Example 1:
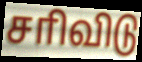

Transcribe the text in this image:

சரிவிடு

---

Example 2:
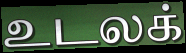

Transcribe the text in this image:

உடலக்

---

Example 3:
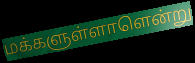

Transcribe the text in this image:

மக்களுள்ளாளென்று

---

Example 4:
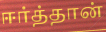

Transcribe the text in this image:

ஈர்த்தான்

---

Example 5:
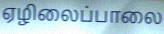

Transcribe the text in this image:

ஏழிலைப்பாலை